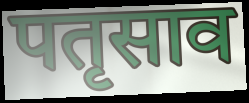
पतृसाव